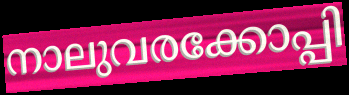
നാലുവരക്കോപ്പി